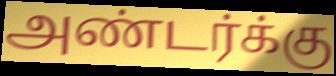
அண்டர்க்கு